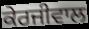
ਕੇਰਜੀਵਾਲ